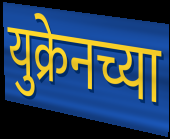
युक्रेनच्या